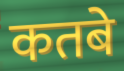
कतबे